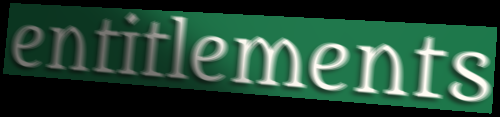
entitlements